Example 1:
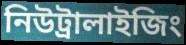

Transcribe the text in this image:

নিউট্রালাইজিং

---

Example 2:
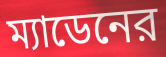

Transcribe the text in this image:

ম্যাডেনের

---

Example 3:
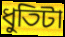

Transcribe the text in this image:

ধুতিটা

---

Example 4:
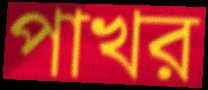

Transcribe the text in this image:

পাখর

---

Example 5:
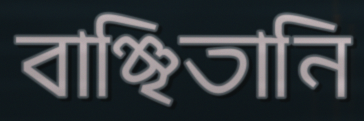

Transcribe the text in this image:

বাঞ্ছিতানি